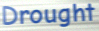
Drought